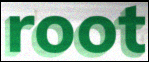
root